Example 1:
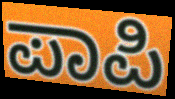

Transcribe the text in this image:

ಪಾಪಿ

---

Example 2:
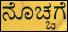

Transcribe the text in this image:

ನೊಚ್ಚಗೆ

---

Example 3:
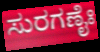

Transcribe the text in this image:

ಸುರಗಣೈಃ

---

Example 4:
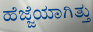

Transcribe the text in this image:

ಹೆಜ್ಜೆಯಾಗಿತ್ತು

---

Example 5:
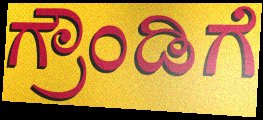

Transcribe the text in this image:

ಗ್ರೌಂಡಿಗೆ